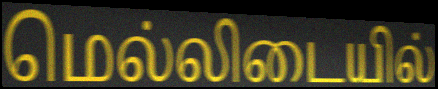
மெல்லிடையில்